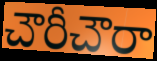
చౌరీచౌరా